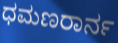
ಧಮಣರಾರ್ನ